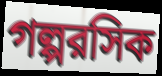
গল্পরসিক